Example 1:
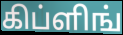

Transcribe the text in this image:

கிப்ளிங்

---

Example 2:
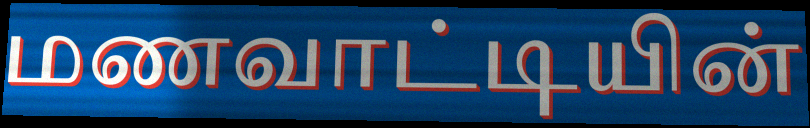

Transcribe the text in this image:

மணவாட்டியின்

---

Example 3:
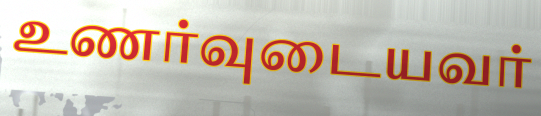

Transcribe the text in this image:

உணர்வுடையவர்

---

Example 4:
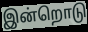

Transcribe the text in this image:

இன்றொடு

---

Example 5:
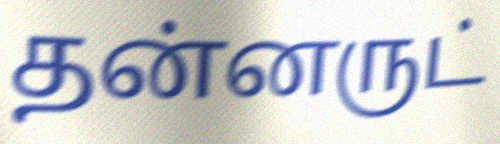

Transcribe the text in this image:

தன்னருட்